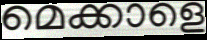
മെക്കാളെ